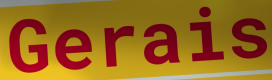
Gerais